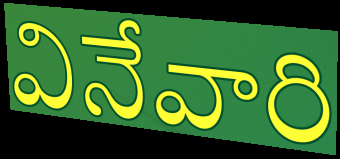
వినేవారి